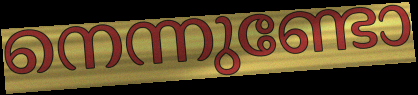
നെന്നുണ്ടോ